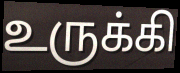
உருக்கி